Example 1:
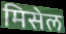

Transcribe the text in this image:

मिसेल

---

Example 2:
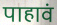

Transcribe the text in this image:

पाहावं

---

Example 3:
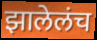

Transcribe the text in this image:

झालेलंच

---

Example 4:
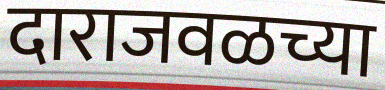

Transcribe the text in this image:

दाराजवळच्या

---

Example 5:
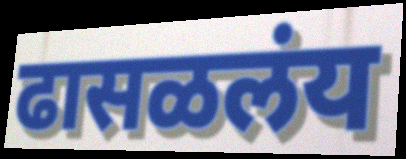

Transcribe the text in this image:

ढासळलंय